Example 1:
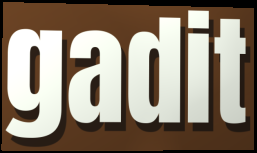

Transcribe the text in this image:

gadit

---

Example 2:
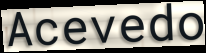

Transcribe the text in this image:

Acevedo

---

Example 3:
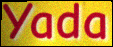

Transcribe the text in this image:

Yada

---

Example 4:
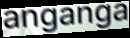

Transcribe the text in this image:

anganga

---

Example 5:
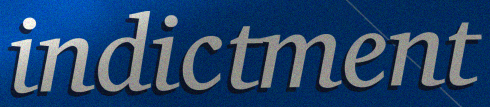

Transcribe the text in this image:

indictment